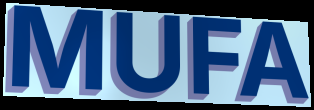
MUFA